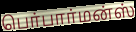
பெர்பார்மன்ஸ்